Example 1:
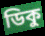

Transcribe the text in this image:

ডিকু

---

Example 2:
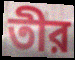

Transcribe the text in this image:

তীর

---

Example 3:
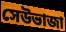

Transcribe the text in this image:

সেউভাজা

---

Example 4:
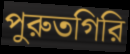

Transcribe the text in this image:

পুরুতগিরি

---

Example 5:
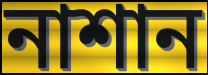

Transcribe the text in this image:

নাশান